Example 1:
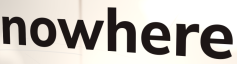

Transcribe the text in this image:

nowhere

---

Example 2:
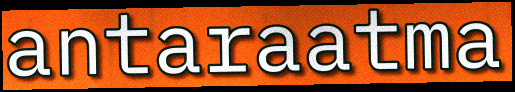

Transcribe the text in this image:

antaraatma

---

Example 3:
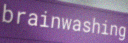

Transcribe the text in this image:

brainwashing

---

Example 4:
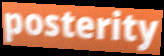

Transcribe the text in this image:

posterity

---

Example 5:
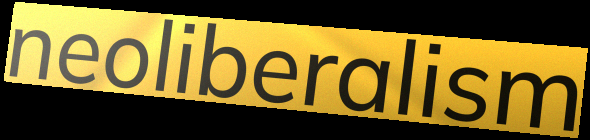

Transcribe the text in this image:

neoliberalism